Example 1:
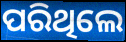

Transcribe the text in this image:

ପରିଥିଲେ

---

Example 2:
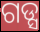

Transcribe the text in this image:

ଗଡ୍ସ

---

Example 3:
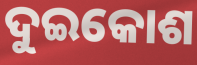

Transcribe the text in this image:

ଦୁଇକୋଶ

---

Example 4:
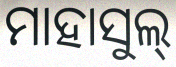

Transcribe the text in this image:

ମାହାସୁଲ୍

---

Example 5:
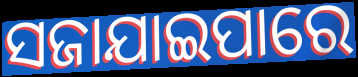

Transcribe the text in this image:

ସଜାଯାଇପାରେ